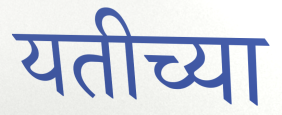
यतीच्या